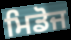
ਮਿਡੋਜ